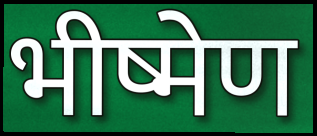
भीष्मेण